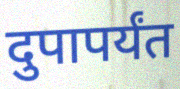
दुपापर्यंत